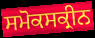
ਸਮੋਕਸਕ੍ਰੀਨ